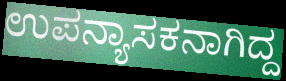
ಉಪನ್ಯಾಸಕನಾಗಿದ್ದ